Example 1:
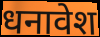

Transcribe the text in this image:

धनावेश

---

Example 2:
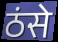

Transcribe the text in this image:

ठंसे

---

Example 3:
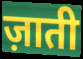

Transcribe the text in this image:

ज़ाती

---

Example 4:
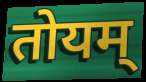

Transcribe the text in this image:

तोयम्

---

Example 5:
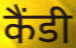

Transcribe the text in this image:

कैंडी